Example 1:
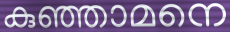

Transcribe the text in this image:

കുഞ്ഞാമനെ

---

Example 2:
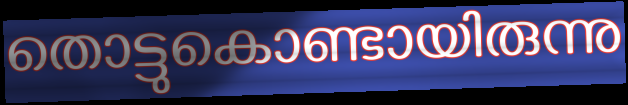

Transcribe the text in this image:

തൊട്ടുകൊണ്ടായിരുന്നു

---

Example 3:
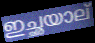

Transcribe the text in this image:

ഇച്ഛയാല്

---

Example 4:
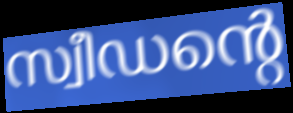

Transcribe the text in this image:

സ്വീഡന്റെ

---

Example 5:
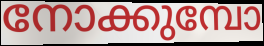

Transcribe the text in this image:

നോക്കുമ്പോ